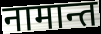
नामान्त